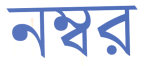
নম্বর